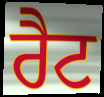
ਰੈਟ